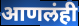
आणलंही